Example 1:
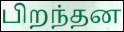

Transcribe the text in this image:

பிறந்தன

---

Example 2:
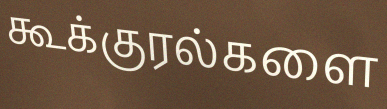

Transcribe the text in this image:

கூக்குரல்களை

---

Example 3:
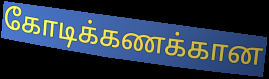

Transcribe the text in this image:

கோடிக்கணக்கான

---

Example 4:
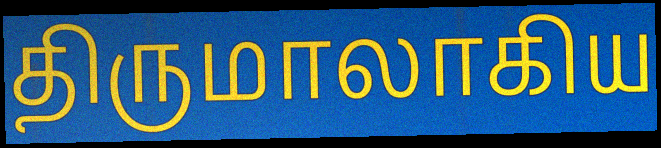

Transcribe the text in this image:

திருமாலாகிய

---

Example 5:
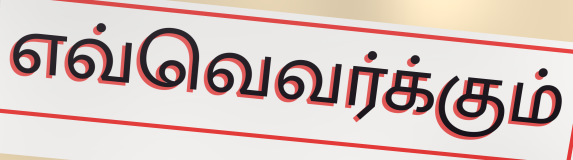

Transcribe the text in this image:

எவ்வெவர்க்கும்